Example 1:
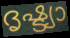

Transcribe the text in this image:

ദൃഷ്ട്യാ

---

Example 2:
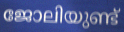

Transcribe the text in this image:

ജോലിയുണ്ട്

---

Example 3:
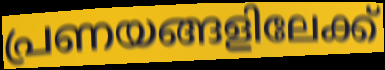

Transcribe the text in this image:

പ്രണയങ്ങളിലേക്ക്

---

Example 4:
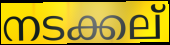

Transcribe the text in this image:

നടക്കല്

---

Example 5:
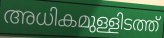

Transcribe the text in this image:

അധികമുള്ളിടത്ത്